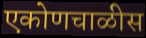
एकोणचाळीस